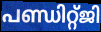
പണ്ഡിറ്റ്ജി